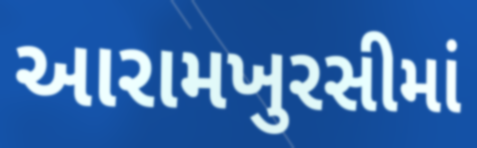
આરામખુરસીમાં